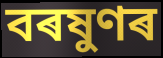
বৰষুণৰ